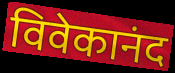
विवेकानंद